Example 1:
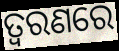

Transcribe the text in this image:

ତ୍ଵରଣରେ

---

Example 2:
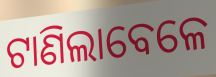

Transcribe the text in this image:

ଟାଣିଲାବେଳେ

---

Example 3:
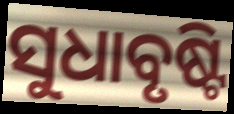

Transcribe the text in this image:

ସୁଧାବୃଷ୍ଟି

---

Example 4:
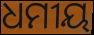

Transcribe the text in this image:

ଧମୀୟ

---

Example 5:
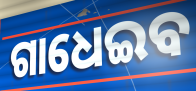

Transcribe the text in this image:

ଗାଧେଇବ